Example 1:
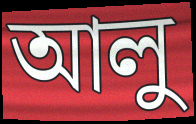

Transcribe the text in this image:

আলু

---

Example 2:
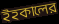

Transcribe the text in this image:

ইহকালের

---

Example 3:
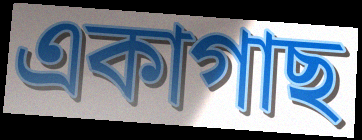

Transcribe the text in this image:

একাগাছ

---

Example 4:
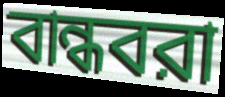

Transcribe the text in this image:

বান্ধবরা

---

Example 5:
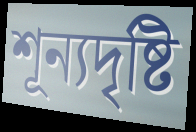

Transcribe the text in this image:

শূন্যদৃষ্টি